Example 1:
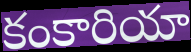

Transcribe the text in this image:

కంకారియా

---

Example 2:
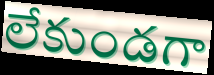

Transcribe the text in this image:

లేకుండగా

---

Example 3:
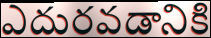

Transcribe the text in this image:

ఎదురవడానికి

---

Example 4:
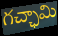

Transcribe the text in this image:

గచ్ఛామి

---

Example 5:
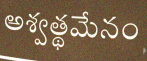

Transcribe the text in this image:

అశ్వత్థమేనం